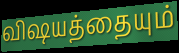
விஷயத்தையும்